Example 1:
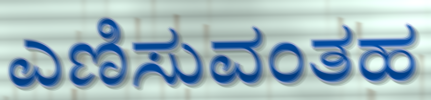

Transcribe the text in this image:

ಎಣಿಸುವಂತಹ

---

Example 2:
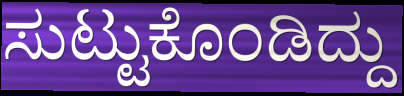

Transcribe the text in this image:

ಸುಟ್ಟುಕೊಂಡಿದ್ದು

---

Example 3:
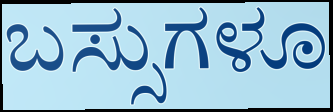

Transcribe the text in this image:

ಬಸ್ಸುಗಳೂ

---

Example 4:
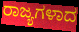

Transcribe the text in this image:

ರಾಜ್ಯಗಳಾದ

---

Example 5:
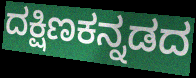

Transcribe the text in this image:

ದಕ್ಷಿಣಕನ್ನಡದ